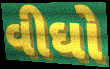
વીઘો